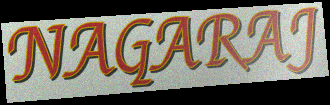
NAGARAJ